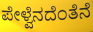
ಪೇಳ್ವೆನದೆಂತೆನೆ